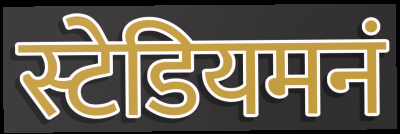
स्टेडियमनं